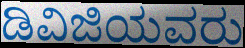
ಡಿವಿಜಿಯವರು